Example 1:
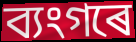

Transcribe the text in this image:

ব্যংগৰে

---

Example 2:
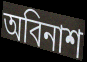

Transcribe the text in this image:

অবিনাশ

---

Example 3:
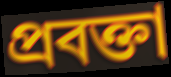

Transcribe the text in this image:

প্ৰবক্তা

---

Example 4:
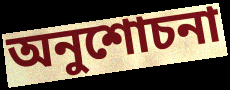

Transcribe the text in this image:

অনুশোচনা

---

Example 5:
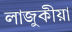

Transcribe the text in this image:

লাজুকীয়া